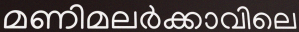
മണിമലർക്കാവിലെ